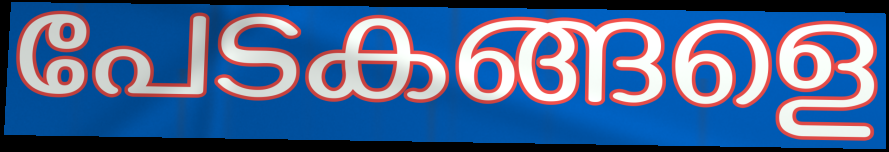
പേടകങ്ങളെ